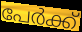
പേർക്ക്